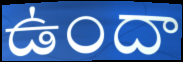
ఉందా